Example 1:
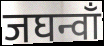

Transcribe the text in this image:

जघन्वाँ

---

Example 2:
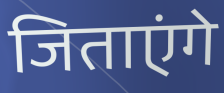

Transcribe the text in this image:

जिताएंगे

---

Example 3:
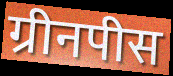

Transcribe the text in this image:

ग्रीनपीस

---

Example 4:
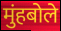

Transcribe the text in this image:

मुंहबोले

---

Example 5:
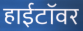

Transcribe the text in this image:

हाईटॉवर